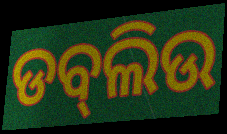
ଡବ୍‍ଲିଉ